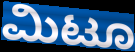
ಮಿಟೂ